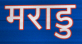
मराडु